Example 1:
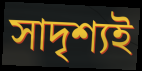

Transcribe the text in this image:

সাদৃশ্যই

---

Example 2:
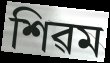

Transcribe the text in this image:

শিৱম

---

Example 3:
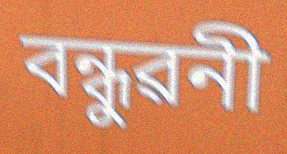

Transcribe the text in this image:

বন্ধুৱনী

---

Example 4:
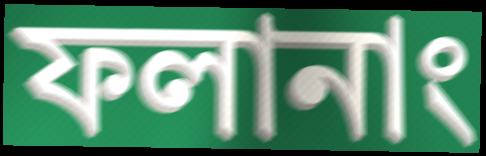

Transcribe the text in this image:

ফলানাং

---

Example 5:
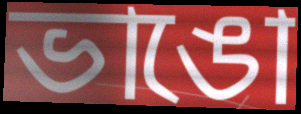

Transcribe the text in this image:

ভাঙো